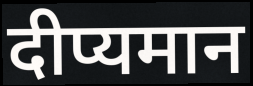
दीप्यमान